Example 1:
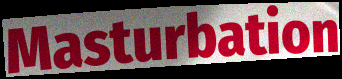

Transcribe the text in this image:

Masturbation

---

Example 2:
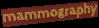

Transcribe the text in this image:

mammography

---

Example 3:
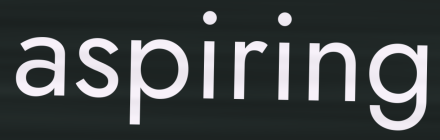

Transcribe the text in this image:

aspiring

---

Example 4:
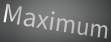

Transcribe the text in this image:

Maximum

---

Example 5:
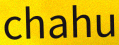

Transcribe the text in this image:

chahu